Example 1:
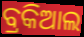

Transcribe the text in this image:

ବ୍ରକିଆଲ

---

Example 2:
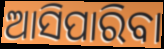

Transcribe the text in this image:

ଆସିପାରିବା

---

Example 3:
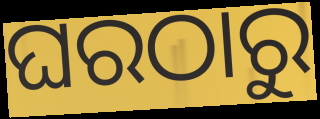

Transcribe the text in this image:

ଘରଠାରୁ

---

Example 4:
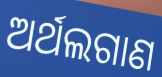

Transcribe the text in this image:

ଅର୍ଥଲଗାଣ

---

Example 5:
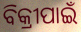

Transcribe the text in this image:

ବିକ୍ରୀପାଇଁ